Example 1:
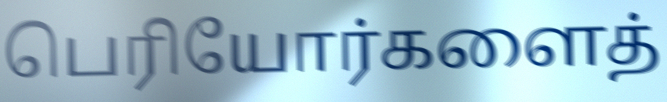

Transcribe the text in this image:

பெரியோர்களைத்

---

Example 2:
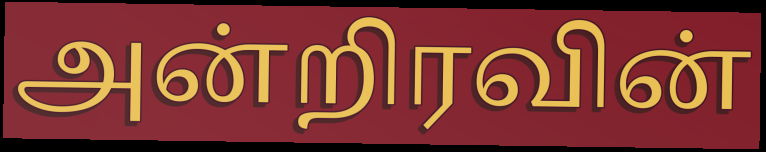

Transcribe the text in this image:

அன்றிரவின்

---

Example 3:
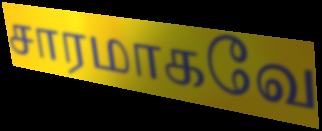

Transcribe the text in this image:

சாரமாகவே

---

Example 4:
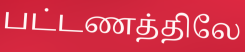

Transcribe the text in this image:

பட்டணத்திலே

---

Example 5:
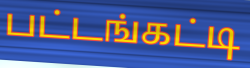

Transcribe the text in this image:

பட்டங்கட்டி